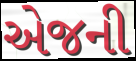
એજની